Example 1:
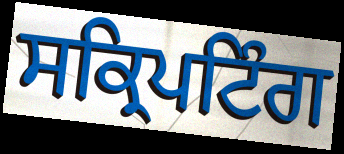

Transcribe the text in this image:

ਸਕ੍ਰਿਪਟਿੰਗ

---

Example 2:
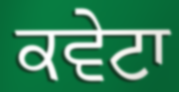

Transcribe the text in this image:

ਕਵੇਟਾ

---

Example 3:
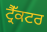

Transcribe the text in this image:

ਟ੍ਰੈੱਕਟਰ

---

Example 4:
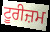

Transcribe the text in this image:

ਟੂਰੀਜ਼ਮ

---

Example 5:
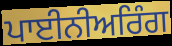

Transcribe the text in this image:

ਪਾਈਨੀਅਰਿੰਗ